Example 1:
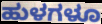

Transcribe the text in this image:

ಹುಳಗಳೂ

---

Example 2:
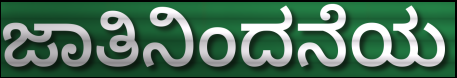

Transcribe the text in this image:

ಜಾತಿನಿಂದನೆಯ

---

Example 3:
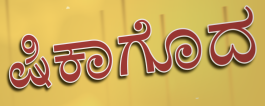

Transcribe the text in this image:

ಷಿಕಾಗೊದ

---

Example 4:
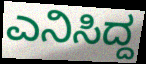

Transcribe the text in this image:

ಎನಿಸಿದ್ದ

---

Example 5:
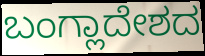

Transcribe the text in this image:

ಬಂಗ್ಲಾದೇಶದ